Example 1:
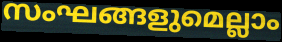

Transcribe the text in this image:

സംഘങ്ങളുമെല്ലാം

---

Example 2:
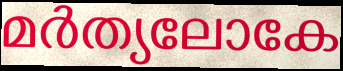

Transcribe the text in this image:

മർത്യലോകേ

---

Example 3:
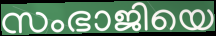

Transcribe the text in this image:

സംഭാജിയെ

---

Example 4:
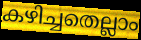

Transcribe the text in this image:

കഴിച്ചതെല്ലാം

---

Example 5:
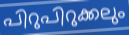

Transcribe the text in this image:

പിറുപിറുക്കലും